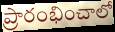
ప్రారంభించాలో